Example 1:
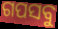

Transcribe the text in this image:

ଗପସବୁ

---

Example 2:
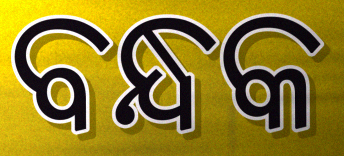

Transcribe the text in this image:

ବନ୍ଧକ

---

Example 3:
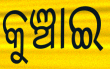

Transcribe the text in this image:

କୁଞ୍ଚାଇ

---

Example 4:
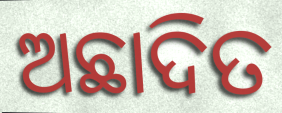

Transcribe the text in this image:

ଅଛାଦିତ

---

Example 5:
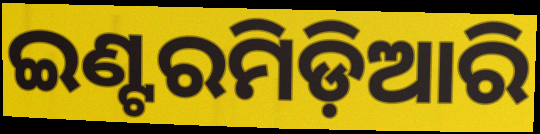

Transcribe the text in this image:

ଇଣ୍ଟରମିଡ଼ିଆରି